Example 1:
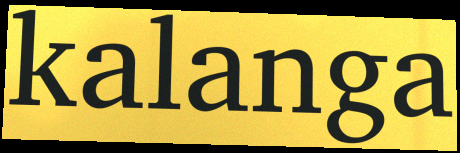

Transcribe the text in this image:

kalanga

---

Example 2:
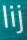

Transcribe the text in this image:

lij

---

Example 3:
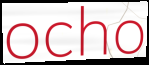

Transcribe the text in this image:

ocho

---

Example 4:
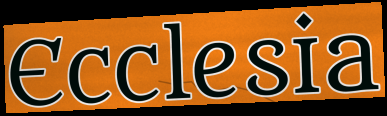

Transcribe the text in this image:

Ecclesia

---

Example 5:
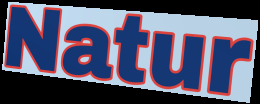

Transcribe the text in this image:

Natur